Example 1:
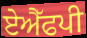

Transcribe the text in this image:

ਏਐੱਫਪੀ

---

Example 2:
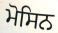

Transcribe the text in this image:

ਮੋਸਿਨ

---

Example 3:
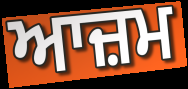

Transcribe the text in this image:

ਆਜ਼ਮ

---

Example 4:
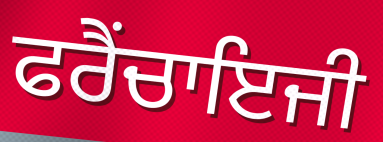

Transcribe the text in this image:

ਫਰੈਂਚਾਇਜੀ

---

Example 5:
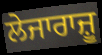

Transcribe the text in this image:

ਲੇਜਾਰਾਜ਼ੂ